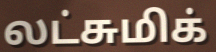
லட்சுமிக்